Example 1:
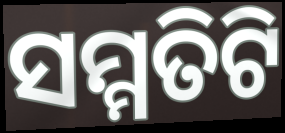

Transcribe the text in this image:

ସମ୍ମତିଟି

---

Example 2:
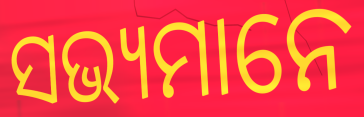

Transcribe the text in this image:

ସଭ୍ୟମାନେ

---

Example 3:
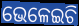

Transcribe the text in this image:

ଭେଳେଇଚି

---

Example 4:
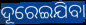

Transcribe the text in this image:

ଦୂରେଇଯିବା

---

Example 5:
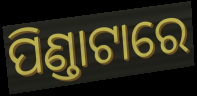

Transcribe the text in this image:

ପିଣ୍ଡାଟାରେ